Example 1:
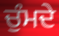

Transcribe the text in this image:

ਚੁੰਮਦੇ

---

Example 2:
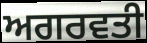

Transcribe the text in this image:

ਅਗਰਵਤੀ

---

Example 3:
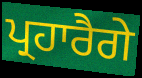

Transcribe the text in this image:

ਪ੍ਰਹਾਰੈਗੇ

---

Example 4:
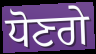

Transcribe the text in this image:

ਧੋਣਗੇ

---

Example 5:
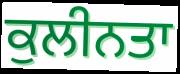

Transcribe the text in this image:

ਕੁਲੀਨਤਾ